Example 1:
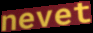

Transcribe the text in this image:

nevet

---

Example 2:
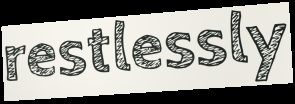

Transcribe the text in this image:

restlessly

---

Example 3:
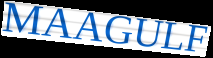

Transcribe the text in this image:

MAAGULF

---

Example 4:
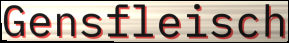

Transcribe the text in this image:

Gensfleisch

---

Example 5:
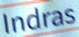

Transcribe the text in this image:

Indras